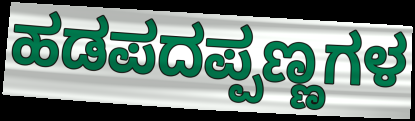
ಹಡಪದಪ್ಪಣ್ಣಗಳ